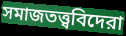
সমাজতত্ত্ববিদেরা